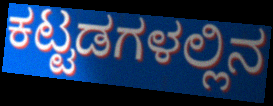
ಕಟ್ಟಡಗಳಲ್ಲಿನ